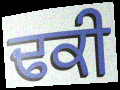
ਢਕੀ